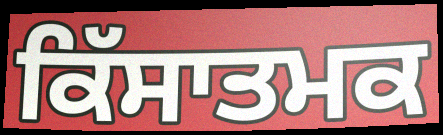
ਕਿੱਸਾਤਮਕ